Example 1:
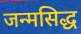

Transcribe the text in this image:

जन्मसिद्ध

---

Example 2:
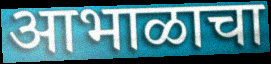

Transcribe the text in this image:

आभाळाचा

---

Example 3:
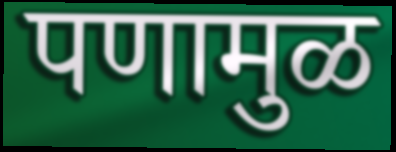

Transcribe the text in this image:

पणामुळ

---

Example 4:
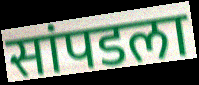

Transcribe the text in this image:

सांपडला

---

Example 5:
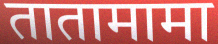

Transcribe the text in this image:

तातामामा